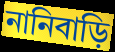
নানিবাড়ি